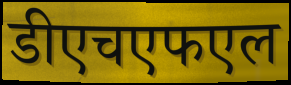
डीएचएफएल